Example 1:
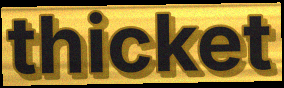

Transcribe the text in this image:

thicket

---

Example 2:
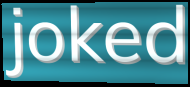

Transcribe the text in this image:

joked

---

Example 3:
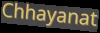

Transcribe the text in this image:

Chhayanat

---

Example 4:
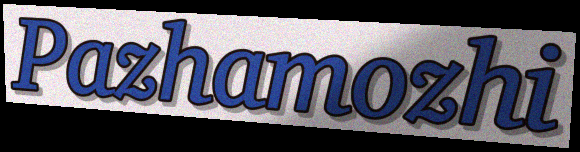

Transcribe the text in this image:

Pazhamozhi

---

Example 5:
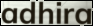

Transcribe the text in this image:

adhira